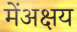
मेंअक्षय